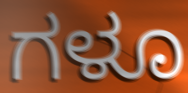
ಗಳೂ